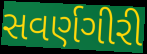
સવર્ણગીરી